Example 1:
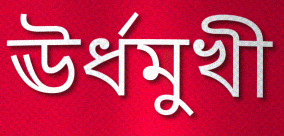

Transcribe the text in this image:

ঊৰ্ধমুখী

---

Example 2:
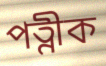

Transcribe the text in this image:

পত্নীক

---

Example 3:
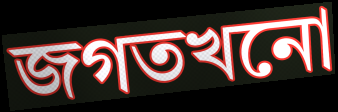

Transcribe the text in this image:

জগতখনো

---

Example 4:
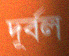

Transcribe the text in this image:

দূৰ্বল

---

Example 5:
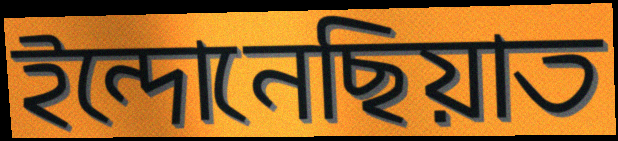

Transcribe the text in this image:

ইন্দোনেছিয়াত